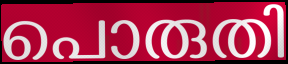
പൊരുതി